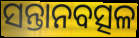
ସନ୍ତାନବତ୍ସଳ